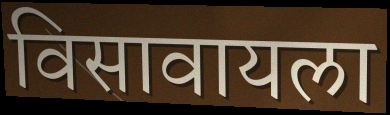
विसावायला